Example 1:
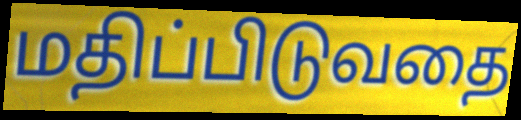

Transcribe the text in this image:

மதிப்பிடுவதை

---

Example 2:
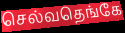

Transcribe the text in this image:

செல்வதெங்கே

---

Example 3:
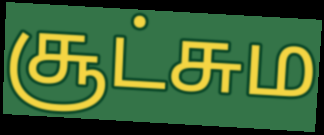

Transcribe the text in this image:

சூட்சும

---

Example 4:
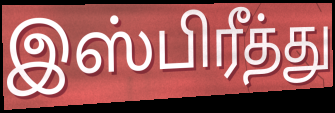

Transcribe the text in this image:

இஸ்பிரீத்து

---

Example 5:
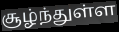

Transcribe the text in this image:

சூழ்ந்துள்ள